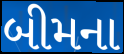
બીમના